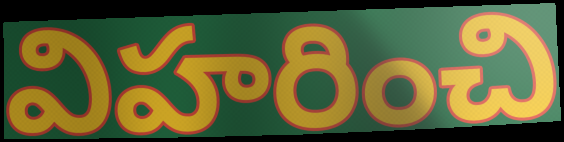
విహరించి